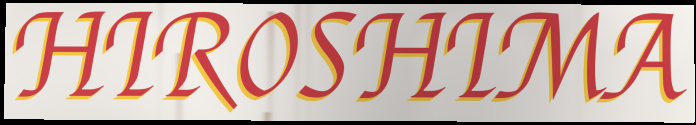
HIROSHIMA